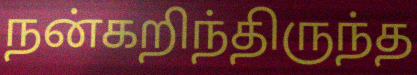
நன்கறிந்திருந்த